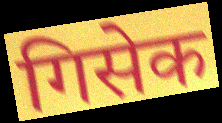
गिसेक